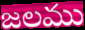
జలము